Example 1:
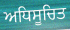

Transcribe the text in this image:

ਅਧਿਸੂਚਿਤ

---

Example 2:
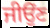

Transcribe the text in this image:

ਜੀਉਂਣ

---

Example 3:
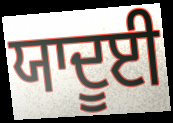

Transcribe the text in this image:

ਯਾਦੂਈ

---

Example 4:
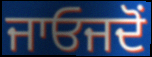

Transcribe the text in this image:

ਜਾਓਜਦੋਂ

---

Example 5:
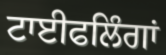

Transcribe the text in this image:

ਟਾਈਫਲਿੰਗਾਂ